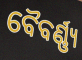
ବୈବର୍ଣ୍ଣ୍ୟ